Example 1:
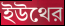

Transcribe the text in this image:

ইউথের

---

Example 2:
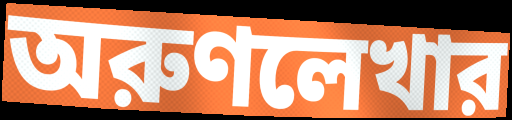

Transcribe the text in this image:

অরুণলেখার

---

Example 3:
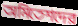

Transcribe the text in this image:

অমিতেশদের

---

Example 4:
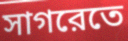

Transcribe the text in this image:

সাগরেতে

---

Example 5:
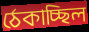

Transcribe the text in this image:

ঠেকাচ্ছিল